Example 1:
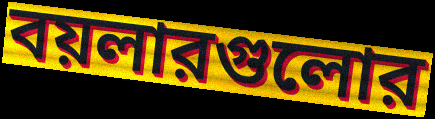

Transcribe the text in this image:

বয়লারগুলোর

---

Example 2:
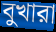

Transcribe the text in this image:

বুখারা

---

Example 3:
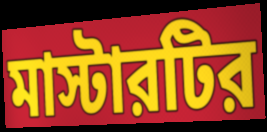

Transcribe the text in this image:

মাস্টারটির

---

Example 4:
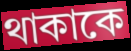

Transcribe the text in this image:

থাকাকে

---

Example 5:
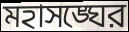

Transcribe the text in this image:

মহাসঙ্ঘের